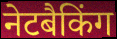
नेटबैकिंग